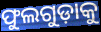
ଫୁଲଗୁଡ଼ାକୁ